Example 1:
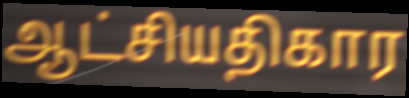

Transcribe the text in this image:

ஆட்சியதிகார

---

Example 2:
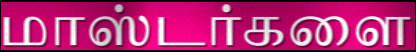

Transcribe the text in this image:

மாஸ்டர்களை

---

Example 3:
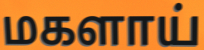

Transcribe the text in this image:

மகளாய்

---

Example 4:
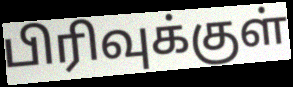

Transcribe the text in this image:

பிரிவுக்குள்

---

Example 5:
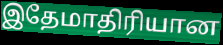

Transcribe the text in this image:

இதேமாதிரியான